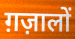
ग़ज़ालों